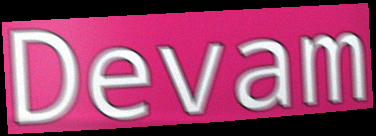
Devam